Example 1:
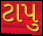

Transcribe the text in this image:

ટાપુ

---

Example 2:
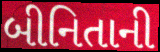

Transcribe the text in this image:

બીનિતાની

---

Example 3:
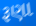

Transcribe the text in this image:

રૂણા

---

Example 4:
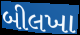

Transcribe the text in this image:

બીલખા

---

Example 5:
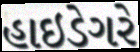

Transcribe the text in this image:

હાઇડેગરે